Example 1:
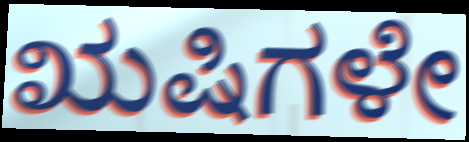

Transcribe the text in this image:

ಋಷಿಗಳೇ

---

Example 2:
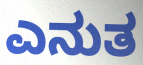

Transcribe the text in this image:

ಎನುತ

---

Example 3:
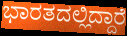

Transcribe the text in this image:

ಭಾರತದಲ್ಲಿದ್ದಾರೆ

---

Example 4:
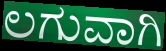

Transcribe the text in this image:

ಲಗುವಾಗಿ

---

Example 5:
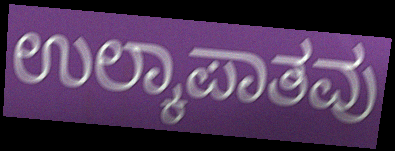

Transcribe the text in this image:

ಉಲ್ಕಾಪಾತವು